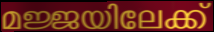
മജ്ജയിലേക്ക്